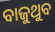
ବାଜୁଥୁବ